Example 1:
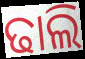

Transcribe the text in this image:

ଢାଲି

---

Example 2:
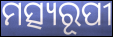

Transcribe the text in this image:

ମତ୍ସ୍ୟରୂପୀ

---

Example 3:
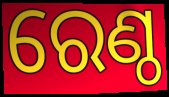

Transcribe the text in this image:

ରେଣ୍ଠ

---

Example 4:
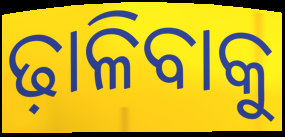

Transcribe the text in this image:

ଢ଼ାଳିବାକୁ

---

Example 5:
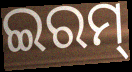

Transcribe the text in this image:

ଇରମ୍